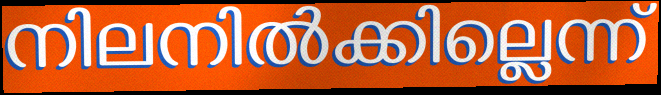
നിലനിൽക്കില്ലെന്ന്